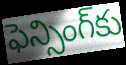
ఫెన్సింగ్‌కు